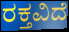
ರಕ್ತವಿದೆ